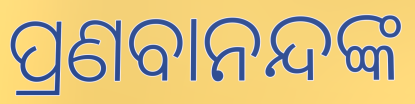
ପ୍ରଣବାନନ୍ଦଙ୍କ